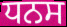
ਧਨਸ